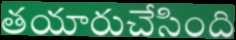
తయారుచేసింది